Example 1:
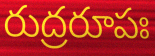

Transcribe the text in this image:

రుద్రరూపః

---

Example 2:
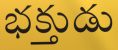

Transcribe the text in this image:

భక్తుడు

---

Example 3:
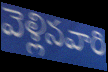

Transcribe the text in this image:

వెళ్లినవారి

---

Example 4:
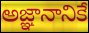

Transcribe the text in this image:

అజ్ఞానానికే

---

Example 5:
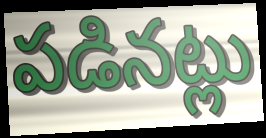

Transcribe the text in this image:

పడినట్లు